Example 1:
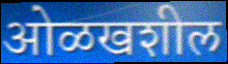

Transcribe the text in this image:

ओळखशील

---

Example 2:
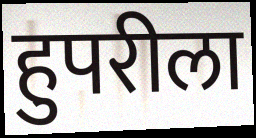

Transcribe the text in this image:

हुपरीला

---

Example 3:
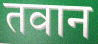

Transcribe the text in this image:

तवान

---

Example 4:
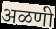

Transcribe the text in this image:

अळणी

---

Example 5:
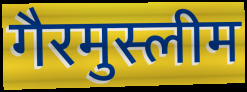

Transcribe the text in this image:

गैरमुस्लीम